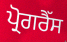
ਪ੍ਰੋਗਰੈੱਸ